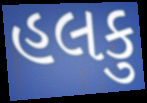
હલકુ